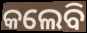
କଲେବି